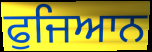
ਫੁਜਿਆਨ